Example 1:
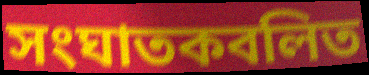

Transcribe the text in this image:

সংঘাতকবলিত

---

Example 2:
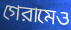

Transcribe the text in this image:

গেরামেও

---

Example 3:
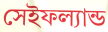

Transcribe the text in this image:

সেইফল্যান্ড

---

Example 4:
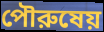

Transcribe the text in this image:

পৌরুষেয়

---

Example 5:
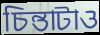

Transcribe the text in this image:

চিন্তাটাও